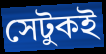
সেটুকই